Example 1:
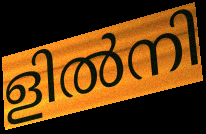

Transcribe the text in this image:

ളിൽനി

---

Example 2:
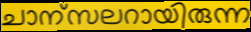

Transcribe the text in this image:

ചാന്സലറായിരുന്ന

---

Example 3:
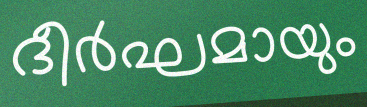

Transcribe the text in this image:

ദീർഘമായും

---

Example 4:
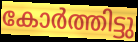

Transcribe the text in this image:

കോർത്തിട്ടു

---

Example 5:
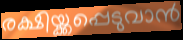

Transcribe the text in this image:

രക്ഷിയ്ക്കപ്പെടുവാൻ